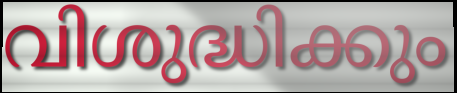
വിശുദ്ധിക്കും